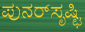
ಪುನರ್‌ಸೃಷ್ಟಿ